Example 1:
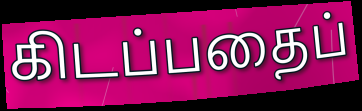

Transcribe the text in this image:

கிடப்பதைப்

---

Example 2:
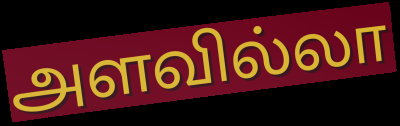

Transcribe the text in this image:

அளவில்லா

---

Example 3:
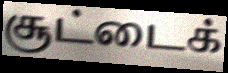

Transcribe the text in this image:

சூட்டைக்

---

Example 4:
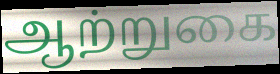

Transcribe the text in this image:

ஆற்றுகை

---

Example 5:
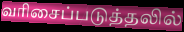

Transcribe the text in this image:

வரிசைப்படுத்தலில்